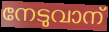
നേടുവാന്